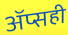
ॲप्सही